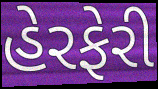
હેરફેરી